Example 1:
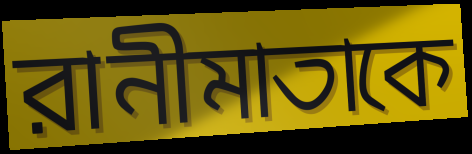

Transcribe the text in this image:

রানীমাতাকে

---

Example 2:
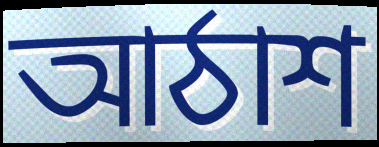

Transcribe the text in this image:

আঠাশ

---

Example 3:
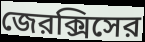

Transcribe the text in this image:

জেরক্সিসের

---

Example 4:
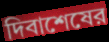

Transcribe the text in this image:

দিবাশেষের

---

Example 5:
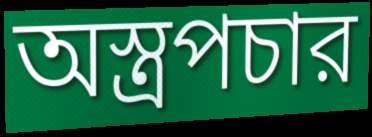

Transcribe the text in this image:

অস্ত্রপচার